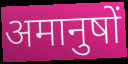
अमानुषों